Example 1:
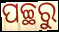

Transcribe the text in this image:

ପଚ୍ଛରୁ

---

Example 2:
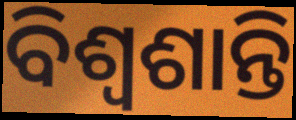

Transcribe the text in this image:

ବିଶ୍ୱଶାନ୍ତି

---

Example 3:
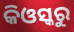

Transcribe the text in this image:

କିଓସ୍କରୁ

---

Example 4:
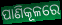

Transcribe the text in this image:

ପାଣିକୂଳରେ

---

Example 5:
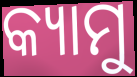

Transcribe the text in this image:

କ୍ୟାମୁ